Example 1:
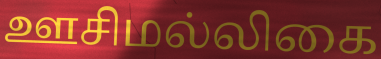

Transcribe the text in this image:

ஊசிமல்லிகை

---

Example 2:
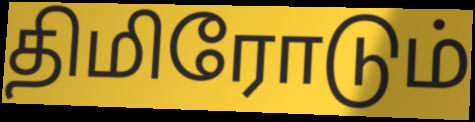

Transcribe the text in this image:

திமிரோடும்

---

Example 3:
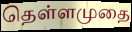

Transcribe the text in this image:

தெள்ளமுதை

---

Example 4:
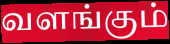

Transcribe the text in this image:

வளங்கும்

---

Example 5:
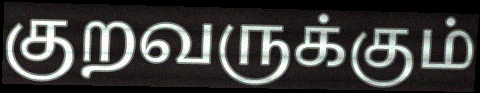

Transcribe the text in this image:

குறவருக்கும்